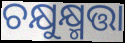
ଚକ୍ଷୁକ୍ଷ୍ମତ୍ତା